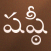
షష్ఠీ